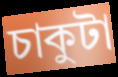
চাকুটা